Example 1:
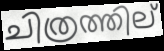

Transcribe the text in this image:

ചിത്രത്തില്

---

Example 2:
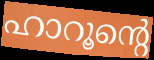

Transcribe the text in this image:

ഹാറൂന്റെ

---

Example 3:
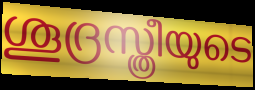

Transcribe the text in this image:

ശൂദ്രസ്ത്രീയുടെ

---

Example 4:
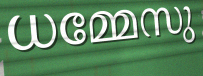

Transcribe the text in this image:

ധമ്മേസു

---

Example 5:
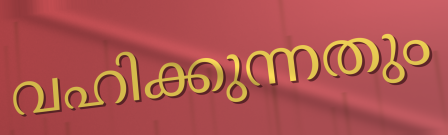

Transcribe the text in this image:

വഹിക്കുന്നതും